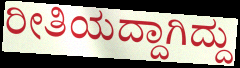
ರೀತಿಯದ್ದಾಗಿದ್ದು